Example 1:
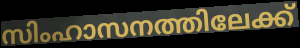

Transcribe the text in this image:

സിംഹാസനത്തിലേക്ക്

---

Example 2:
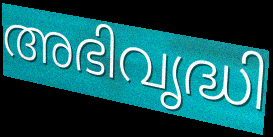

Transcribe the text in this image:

അഭിവൃദ്ധി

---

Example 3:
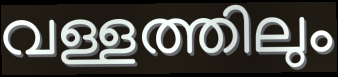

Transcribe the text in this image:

വള്ളത്തിലും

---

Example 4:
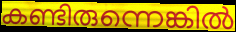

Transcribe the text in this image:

കണ്ടിരുന്നെങ്കിൽ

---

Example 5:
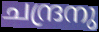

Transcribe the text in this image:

ചന്ദ്രനു